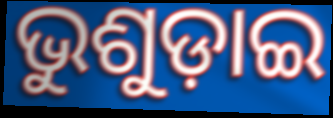
ଭୁଶୁଡ଼ାଇ